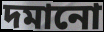
দমানো